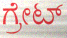
ಗ್ರೇಟ್